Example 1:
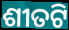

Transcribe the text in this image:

ଶୀତଟି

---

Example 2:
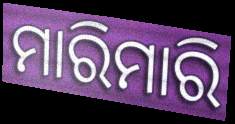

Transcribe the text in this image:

ମାରିମାରି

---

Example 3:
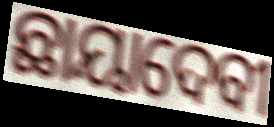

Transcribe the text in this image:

ଛାୟାଦେବୀ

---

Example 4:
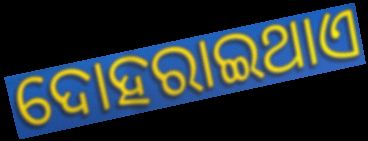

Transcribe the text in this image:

ଦୋହରାଇଥାଏ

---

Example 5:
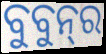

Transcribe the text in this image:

ବୁବୁନ୍‌ର